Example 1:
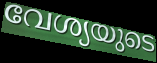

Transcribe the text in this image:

വേശ്യയുടെ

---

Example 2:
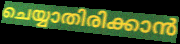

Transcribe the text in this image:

ചെയ്യാതിരിക്കാൻ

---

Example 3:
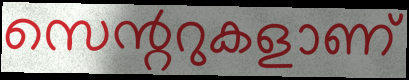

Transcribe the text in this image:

സെന്ററുകളാണ്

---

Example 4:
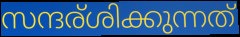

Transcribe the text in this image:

സന്ദര്ശിക്കുന്നത്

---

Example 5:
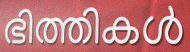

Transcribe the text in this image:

ഭിത്തികൾ